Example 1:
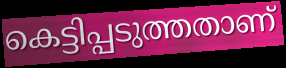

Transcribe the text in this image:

കെട്ടിപ്പടുത്തതാണ്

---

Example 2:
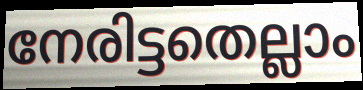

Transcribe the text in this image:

നേരിട്ടതെല്ലാം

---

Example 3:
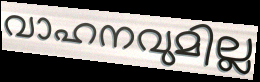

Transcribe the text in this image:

വാഹനവുമില്ല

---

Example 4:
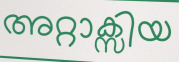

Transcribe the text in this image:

അറ്റാക്സിയ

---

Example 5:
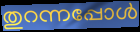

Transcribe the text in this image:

തുറന്നപ്പോൾ